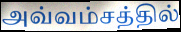
அவ்வம்சத்தில்